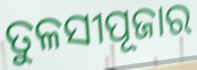
ତୁଳସୀପୂଜାର